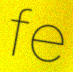
fe